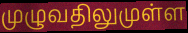
முழுவதிலுமுள்ள